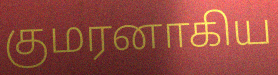
குமரனாகிய